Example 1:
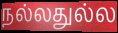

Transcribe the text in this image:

நல்லதுல்ல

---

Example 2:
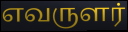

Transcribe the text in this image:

எவருளர்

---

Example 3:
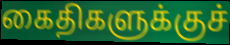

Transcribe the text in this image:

கைதிகளுக்குச்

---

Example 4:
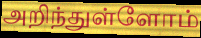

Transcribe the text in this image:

அறிந்துள்ளோம்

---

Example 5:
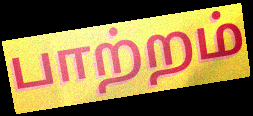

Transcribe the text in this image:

பாற்றம்